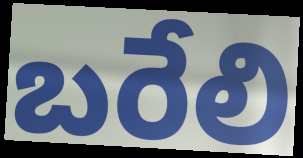
బరేలి